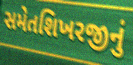
સમેતશિખરજીનું